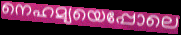
നെഹമ്യയെപ്പോലെ